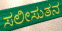
ಸಲೀಸುತನ